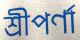
শ্রীপর্ণা